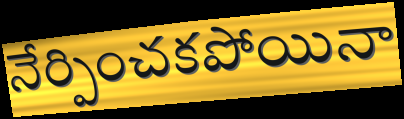
నేర్పించకపోయినా